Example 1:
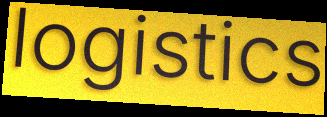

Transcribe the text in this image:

logistics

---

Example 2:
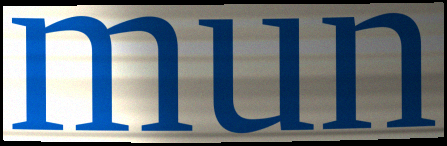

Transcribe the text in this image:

mun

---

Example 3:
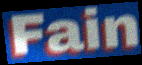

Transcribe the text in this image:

Fain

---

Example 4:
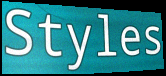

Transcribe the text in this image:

Styles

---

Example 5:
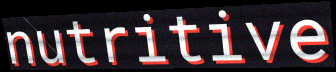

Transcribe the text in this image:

nutritive